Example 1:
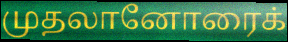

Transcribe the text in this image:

முதலானோரைக்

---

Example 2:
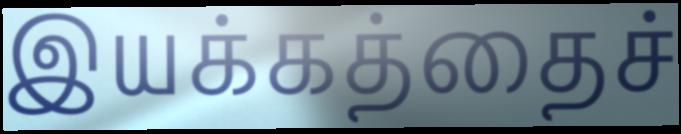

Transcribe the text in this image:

இயக்கத்தைச்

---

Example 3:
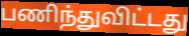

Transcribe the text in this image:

பணிந்துவிட்டது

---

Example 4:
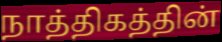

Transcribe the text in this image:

நாத்திகத்தின்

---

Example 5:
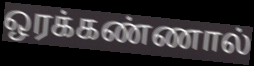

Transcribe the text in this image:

ஒரக்கண்ணால்